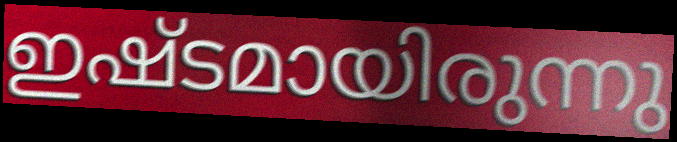
ഇഷ്ടമായിരുന്നു